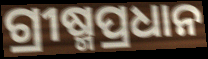
ଗ୍ରୀଷ୍ମପ୍ରଧାନ